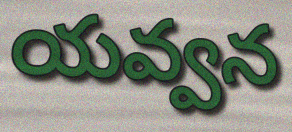
యవ్వన